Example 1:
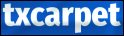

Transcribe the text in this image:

txcarpet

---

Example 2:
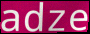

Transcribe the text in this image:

adze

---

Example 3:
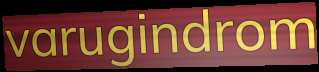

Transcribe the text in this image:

varugindrom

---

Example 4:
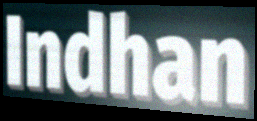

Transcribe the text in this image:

Indhan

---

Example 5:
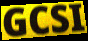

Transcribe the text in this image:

GCSI